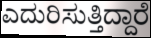
ಎದುರಿಸುತ್ತಿದ್ದಾರೆ